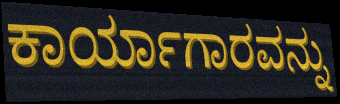
ಕಾರ್ಯಾಗಾರವನ್ನು